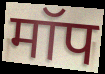
मॉप